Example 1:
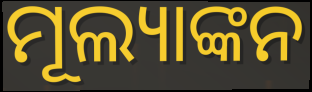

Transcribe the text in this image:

ମୂଲ୍ୟାଙ୍କନ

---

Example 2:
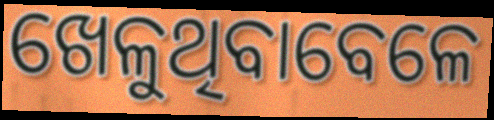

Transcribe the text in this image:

ଖେଳୁଥିବାବେଳେ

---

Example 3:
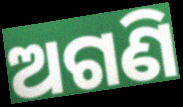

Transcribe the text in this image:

ଅଗଣି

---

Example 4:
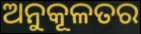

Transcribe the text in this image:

ଅନୁକୂଳତର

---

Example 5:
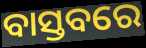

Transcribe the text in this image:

ବାସ୍ତବରେ